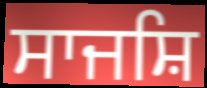
ਸਾਜਸ਼ਿ